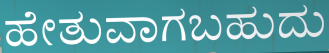
ಹೇತುವಾಗಬಹುದು